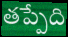
తప్పేది